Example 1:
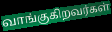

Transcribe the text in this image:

வாங்குகிறவர்கள்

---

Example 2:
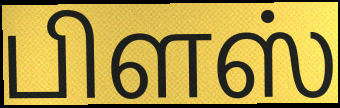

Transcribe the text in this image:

பிளஸ்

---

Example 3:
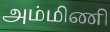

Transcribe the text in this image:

அம்மிணி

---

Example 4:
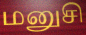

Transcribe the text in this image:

மனுசி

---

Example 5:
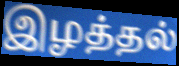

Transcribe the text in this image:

இழத்தல்